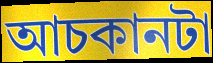
আচকানটা